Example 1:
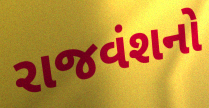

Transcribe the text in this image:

રાજવંશનો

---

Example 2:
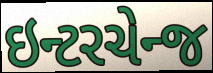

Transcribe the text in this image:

ઇન્ટરચેન્જ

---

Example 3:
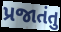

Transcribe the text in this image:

પ્રજાતંતુ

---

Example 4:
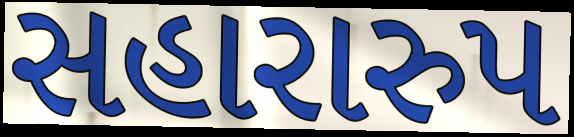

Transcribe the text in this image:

સહારારુપ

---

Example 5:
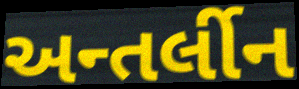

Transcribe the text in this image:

અન્તર્લીન